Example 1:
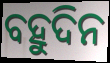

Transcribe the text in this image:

ବହୁଦିନ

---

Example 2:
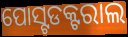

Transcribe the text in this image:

ପୋସ୍ଟଡକ୍ଟରାଲ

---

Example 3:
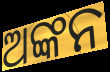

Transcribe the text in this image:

ଅଙ୍କନ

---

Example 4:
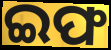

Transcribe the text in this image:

ଇଫ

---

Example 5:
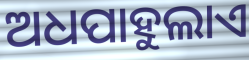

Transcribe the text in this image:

ଅଧପାହୁଲାଏ